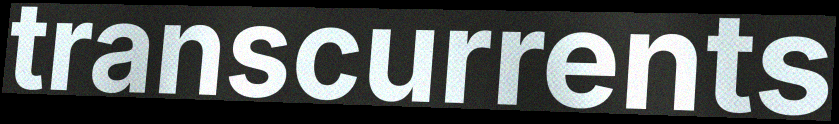
transcurrents